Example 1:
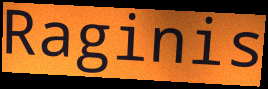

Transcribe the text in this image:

Raginis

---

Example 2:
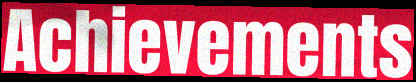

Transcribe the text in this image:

Achievements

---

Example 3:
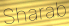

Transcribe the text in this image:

Sharab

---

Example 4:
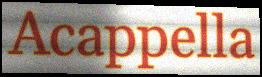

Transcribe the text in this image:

Acappella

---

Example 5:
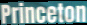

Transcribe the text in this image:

Princeton